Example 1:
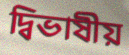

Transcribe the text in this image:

দ্বিভাষীয়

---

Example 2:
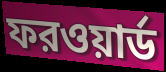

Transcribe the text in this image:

ফরওয়ার্ড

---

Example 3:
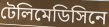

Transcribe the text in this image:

টেলিমেডিসিনে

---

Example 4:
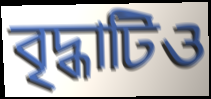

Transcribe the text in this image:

বৃদ্ধাটিও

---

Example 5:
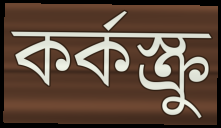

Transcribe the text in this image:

কর্কস্ক্রু